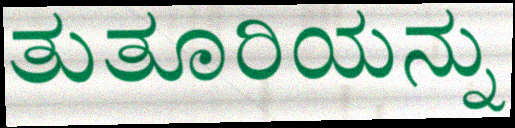
ತುತೂರಿಯನ್ನು